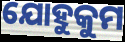
ଯୋହୁକୁମ